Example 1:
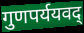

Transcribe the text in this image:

गुणपर्ययवद्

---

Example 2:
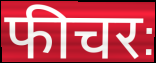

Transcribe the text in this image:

फीचरः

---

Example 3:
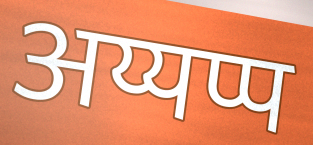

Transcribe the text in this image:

अय्यप्प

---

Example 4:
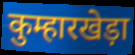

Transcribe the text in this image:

कुम्हारखेड़ा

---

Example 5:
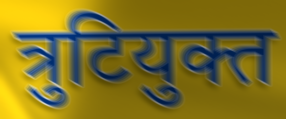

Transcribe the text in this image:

त्रुटियुक्त